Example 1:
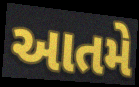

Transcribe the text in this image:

આતમે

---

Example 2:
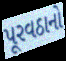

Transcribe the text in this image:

પૂરવઠાનો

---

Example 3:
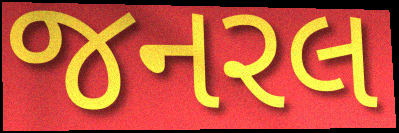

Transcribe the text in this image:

જનરલ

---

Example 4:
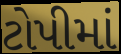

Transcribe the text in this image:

ટોપીમાં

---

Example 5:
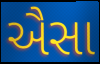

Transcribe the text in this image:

ઐસા